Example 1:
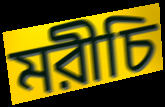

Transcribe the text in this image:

মরীচি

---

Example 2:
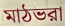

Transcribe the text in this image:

মাঠভরা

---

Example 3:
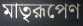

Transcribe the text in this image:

মাতৃরূপেণ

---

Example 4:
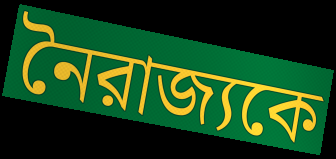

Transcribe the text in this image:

নৈরাজ্যকে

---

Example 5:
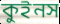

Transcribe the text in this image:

কুইনস